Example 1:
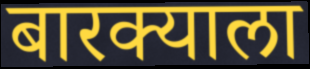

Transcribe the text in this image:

बारक्याला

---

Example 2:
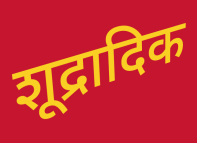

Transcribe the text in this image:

शूद्रादिक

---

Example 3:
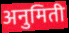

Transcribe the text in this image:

अनुमिती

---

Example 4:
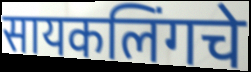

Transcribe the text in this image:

सायकलिंगचे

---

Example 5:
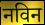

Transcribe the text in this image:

नविन